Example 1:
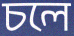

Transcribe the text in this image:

চলে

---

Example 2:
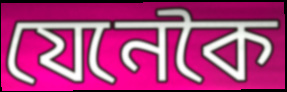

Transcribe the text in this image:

যেনেকৈ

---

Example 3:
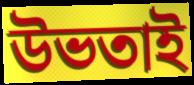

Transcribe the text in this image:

উভতাই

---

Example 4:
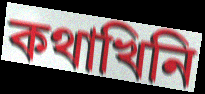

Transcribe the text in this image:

কথাখিনি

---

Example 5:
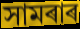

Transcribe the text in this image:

সামৰাৰ